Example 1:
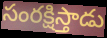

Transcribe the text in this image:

సంరక్షిస్తాడు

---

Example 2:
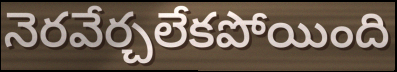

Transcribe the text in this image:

నెరవేర్చలేకపోయింది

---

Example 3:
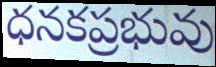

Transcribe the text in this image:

ధనకప్రభువు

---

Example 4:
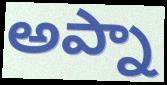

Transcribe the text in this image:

అప్నా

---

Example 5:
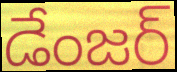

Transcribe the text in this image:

డేంజర్